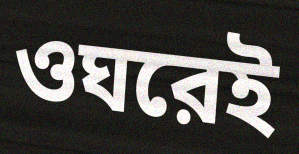
ওঘরেই